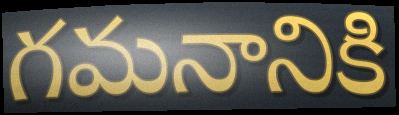
గమనానికి